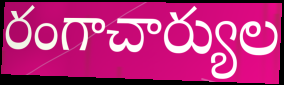
రంగాచార్యుల